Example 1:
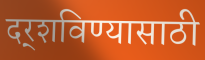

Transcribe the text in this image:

दर्शविण्यासाठी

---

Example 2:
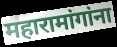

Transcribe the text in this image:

महारामांगांना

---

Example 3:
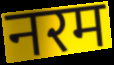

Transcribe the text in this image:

नरम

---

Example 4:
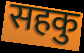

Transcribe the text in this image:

सहकु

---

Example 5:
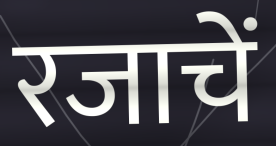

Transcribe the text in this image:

रजाचें